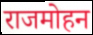
राजमोहन